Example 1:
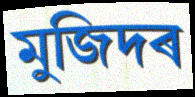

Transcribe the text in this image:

মুজিদৰ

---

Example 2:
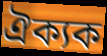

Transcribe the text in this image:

ঐক্যক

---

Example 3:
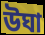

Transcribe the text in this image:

উঘা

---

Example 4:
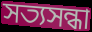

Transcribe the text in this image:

সত্যসন্ধা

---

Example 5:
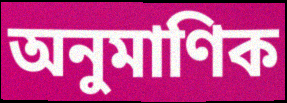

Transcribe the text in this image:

অনুমাণিক